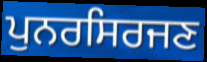
ਪੁਨਰਸਿਰਜਣ